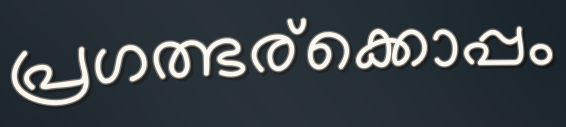
പ്രഗത്ഭര്ക്കൊപ്പം